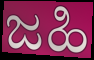
ಜಹಿ